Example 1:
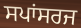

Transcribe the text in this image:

ਸਪਾਂਸਰਜ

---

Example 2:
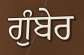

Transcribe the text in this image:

ਗੁੰਬੇਰ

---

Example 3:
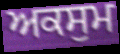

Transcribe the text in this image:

ਅਕਸੁਮ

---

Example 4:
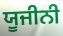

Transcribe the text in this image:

ਯੂਜੀਨੀ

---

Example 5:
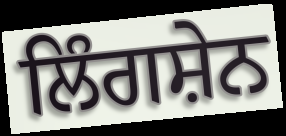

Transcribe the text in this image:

ਲਿੰਗਸ਼ੇਨ